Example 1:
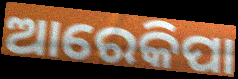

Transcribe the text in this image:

ଆରେକିପା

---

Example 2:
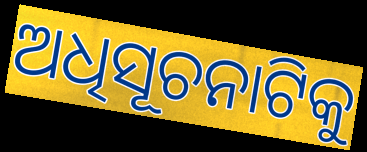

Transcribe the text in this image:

ଅଧିସୂଚନାଟିକୁ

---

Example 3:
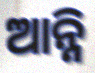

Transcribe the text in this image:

ଆନ୍ନି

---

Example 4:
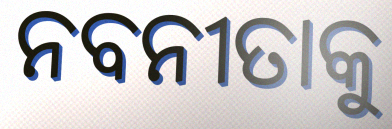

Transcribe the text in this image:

ନବନୀତାକୁ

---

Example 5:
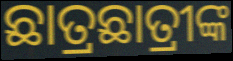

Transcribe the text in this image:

ଛାତ୍ରଛାତ୍ରୀଙ୍କ